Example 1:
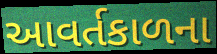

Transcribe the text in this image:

આવર્તકાળના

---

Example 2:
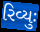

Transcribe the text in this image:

રિવ્યુઃ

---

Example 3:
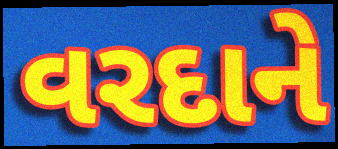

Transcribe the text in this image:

વરદાને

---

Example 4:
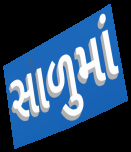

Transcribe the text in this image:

સાળુમાં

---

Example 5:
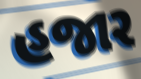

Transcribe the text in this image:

હજાર